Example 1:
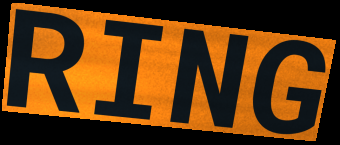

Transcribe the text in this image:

RING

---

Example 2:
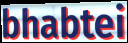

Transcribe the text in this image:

bhabtei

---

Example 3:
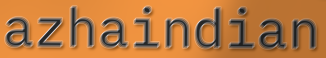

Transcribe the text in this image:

azhaindian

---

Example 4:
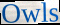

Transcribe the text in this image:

Owls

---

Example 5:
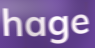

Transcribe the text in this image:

hage